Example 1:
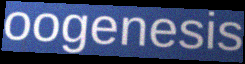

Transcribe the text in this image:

oogenesis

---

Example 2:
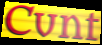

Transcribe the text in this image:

Cunt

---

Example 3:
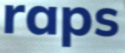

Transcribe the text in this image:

raps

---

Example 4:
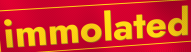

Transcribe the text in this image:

immolated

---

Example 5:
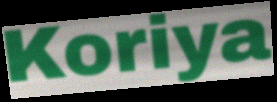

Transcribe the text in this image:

Koriya